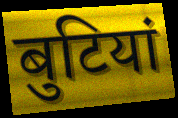
बुटियां